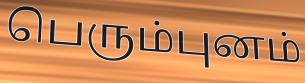
பெரும்புனம்